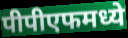
पीपीएफमध्ये